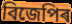
বিজেপিৰ